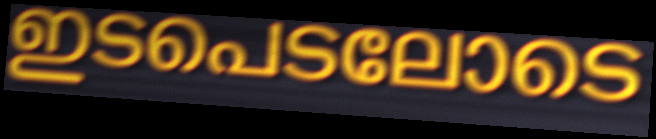
ഇടപെടലോടെ